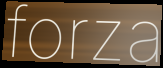
forza